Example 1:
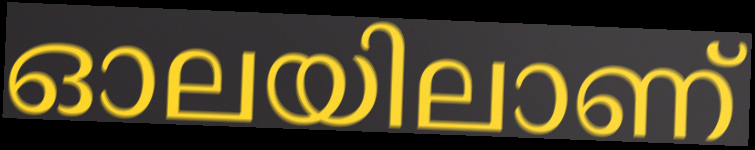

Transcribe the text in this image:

ഓലയിലാണ്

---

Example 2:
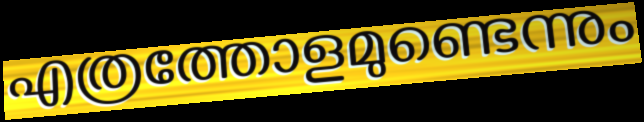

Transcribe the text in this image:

എത്രത്തോളമുണ്ടെന്നും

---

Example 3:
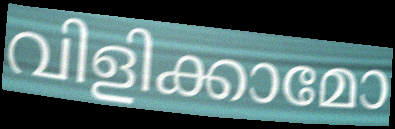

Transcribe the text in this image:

വിളിക്കാമോ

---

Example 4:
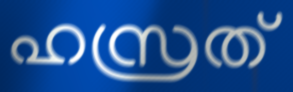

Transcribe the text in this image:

ഹസ്രത്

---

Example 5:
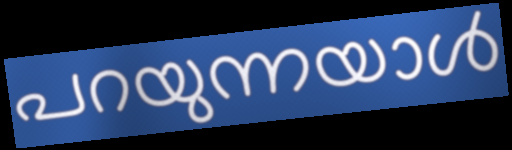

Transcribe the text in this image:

പറയുന്നയാൾ